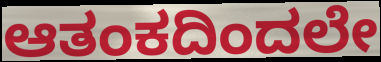
ಆತಂಕದಿಂದಲೇ